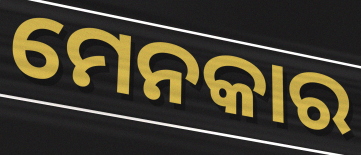
ମେନକାର